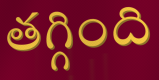
తగ్గింది